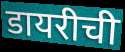
डायरीची